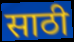
साठी